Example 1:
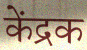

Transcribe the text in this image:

केंद्रक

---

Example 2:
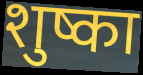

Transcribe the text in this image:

शुष्का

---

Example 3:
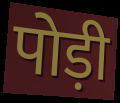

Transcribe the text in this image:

पोड़ी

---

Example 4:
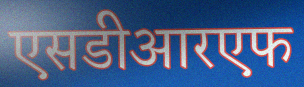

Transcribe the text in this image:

एसडीआरएफ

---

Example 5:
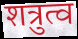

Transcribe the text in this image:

शत्रुत्व